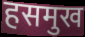
हसमुख